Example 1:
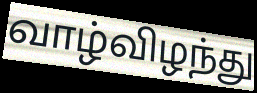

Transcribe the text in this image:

வாழ்விழந்து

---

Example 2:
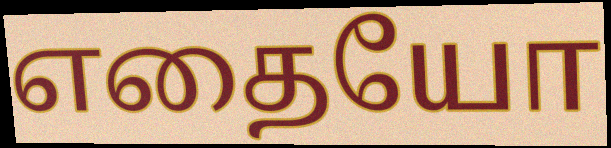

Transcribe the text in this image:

எதையோ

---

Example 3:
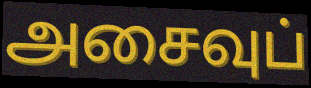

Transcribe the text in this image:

அசைவுப்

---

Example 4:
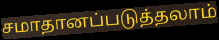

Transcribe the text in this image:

சமாதானப்படுத்தலாம்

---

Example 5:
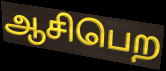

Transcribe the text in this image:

ஆசிபெற